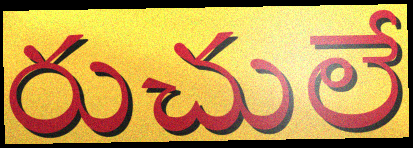
రుచులే